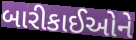
બારીકાઈઓને